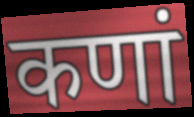
कणां